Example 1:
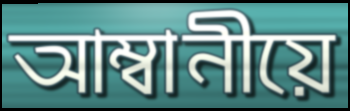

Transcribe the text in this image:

আম্বানীয়ে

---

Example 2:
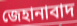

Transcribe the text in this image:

জেহানাবাদ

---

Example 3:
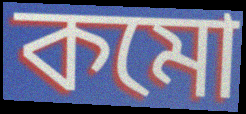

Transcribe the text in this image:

কমো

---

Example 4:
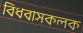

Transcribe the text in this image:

বিধবাসকলক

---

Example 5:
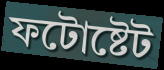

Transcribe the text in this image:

ফটোষ্টেট